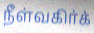
நீள்வகிர்க்